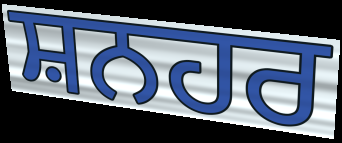
ਸ਼ਨਹਰ